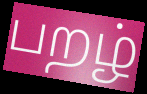
பறழ்